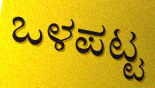
ಒಳಪಟ್ಟ